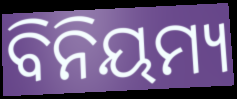
ବିନିୟମ୍ୟ